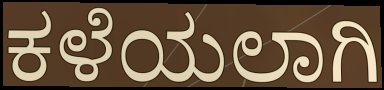
ಕಳೆಯಲಾಗಿ